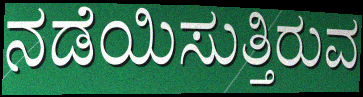
ನಡೆಯಿಸುತ್ತಿರುವ